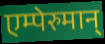
एम्पेरुमान्